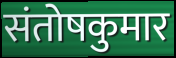
संतोषकुमार